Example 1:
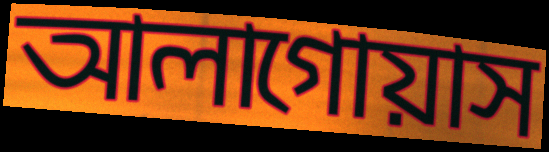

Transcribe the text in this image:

আলাগোয়াস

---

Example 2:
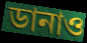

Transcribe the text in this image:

ডানাও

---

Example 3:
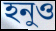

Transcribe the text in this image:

হনুও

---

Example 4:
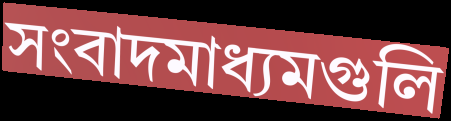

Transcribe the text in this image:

সংবাদমাধ্যমগুলি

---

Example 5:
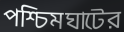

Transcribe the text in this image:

পশ্চিমঘাটের